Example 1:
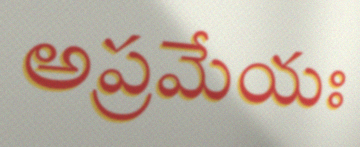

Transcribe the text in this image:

అప్రమేయః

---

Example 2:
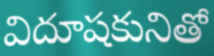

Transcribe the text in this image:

విదూషకునితో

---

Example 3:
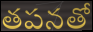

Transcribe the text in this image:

తపనతో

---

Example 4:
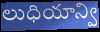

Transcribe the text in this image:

లుధియాన్వి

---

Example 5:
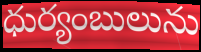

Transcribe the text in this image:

ధుర్యంబులును